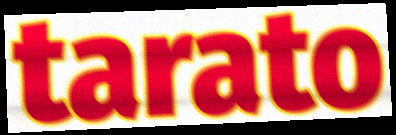
tarato